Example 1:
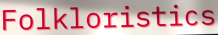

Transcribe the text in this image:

Folkloristics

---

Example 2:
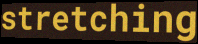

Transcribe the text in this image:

stretching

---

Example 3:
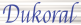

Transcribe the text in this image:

Dukoral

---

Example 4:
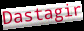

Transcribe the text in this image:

Dastagir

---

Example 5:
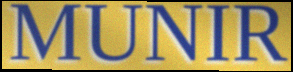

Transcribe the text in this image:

MUNIR